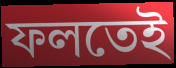
ফলতেই